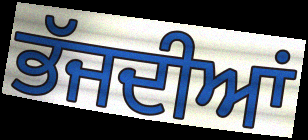
ਭੱਜਦੀਆਂ